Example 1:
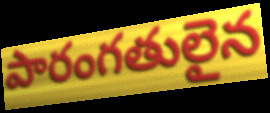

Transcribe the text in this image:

పారంగతులైన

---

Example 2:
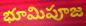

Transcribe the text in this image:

భూమిపూజ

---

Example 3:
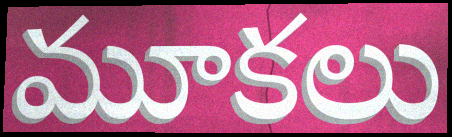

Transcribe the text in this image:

మూకలు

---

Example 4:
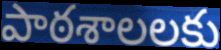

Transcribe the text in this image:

పాఠశాలలకు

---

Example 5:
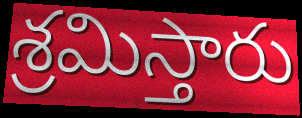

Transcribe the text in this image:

శ్రమిస్తారు